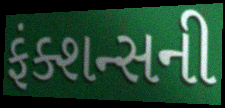
ફંક્શન્સની